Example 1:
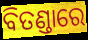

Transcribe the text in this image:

ବିତଣ୍ଡାରେ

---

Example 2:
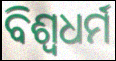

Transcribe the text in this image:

ବିଶ୍ବଧର୍ମ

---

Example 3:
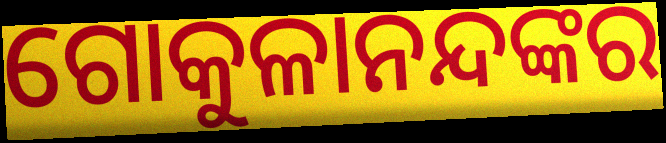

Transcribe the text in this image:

ଗୋକୁଳାନନ୍ଦଙ୍କର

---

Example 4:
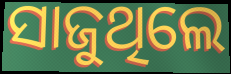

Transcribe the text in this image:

ସାଜୁଥିଲେ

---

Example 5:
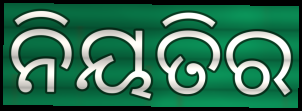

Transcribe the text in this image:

ନିୟତିର